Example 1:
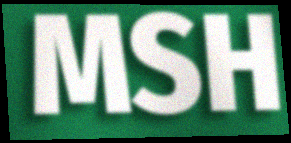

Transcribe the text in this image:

MSH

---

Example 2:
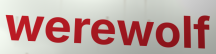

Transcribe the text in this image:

werewolf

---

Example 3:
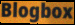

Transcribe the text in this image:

Blogbox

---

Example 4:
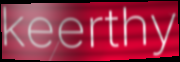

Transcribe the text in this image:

keerthy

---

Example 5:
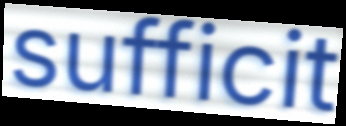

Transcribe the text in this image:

sufficit